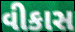
વીકાસ